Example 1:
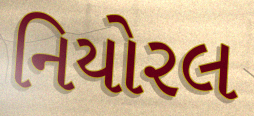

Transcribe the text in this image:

નિયોરલ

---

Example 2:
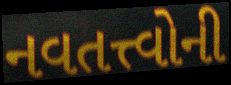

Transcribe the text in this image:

નવતત્ત્વોની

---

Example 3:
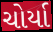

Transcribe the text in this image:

ચોર્યા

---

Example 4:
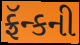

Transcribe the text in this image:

ફ્રૅન્કની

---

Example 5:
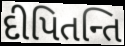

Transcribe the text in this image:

દીપિતન્તિ